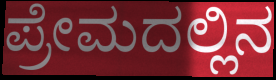
ಪ್ರೇಮದಲ್ಲಿನ